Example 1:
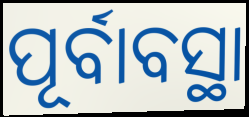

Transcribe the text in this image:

ପୂର୍ବାବସ୍ଥା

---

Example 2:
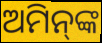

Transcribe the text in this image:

ଅମିନ୍‌ଙ୍କ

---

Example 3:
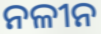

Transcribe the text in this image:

ନଳୀନ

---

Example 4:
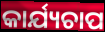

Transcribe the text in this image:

କାର୍ଯ୍ୟଚାପ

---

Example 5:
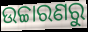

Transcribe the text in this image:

ଉଚ୍ଚାରଣରୁ